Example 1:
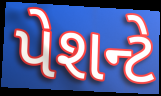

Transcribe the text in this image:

પેશન્ટે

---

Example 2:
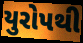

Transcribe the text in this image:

યુરોપથી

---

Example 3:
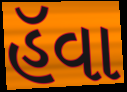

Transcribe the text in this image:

હૅવા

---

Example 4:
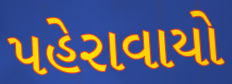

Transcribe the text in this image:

પહેરાવાયો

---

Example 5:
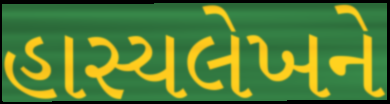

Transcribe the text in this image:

હાસ્યલેખને